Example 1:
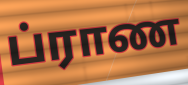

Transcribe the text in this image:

ப்ராண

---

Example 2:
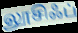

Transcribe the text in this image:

லூசிஃப்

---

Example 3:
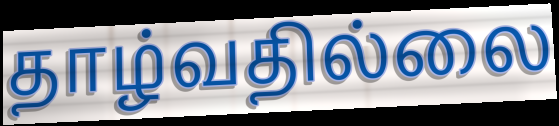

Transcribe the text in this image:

தாழ்வதில்லை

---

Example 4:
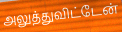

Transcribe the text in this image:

அலுத்துவிட்டேன்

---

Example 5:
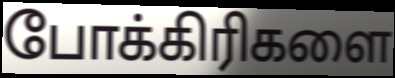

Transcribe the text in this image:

போக்கிரிகளை